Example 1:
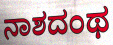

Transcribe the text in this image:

ನಾಶದಂಥ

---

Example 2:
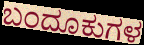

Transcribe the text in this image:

ಬಂದೂಕುಗಳ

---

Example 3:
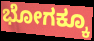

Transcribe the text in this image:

ಭೋಗಕ್ಕೂ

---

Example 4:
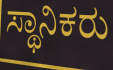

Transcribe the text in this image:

ಸ್ಥಾನಿಕರು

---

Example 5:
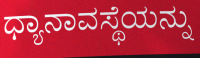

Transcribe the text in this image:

ಧ್ಯಾನಾವಸ್ಥೆಯನ್ನು